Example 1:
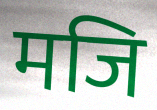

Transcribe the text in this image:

मजि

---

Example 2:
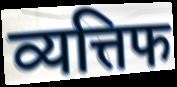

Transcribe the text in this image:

व्यत्तिफ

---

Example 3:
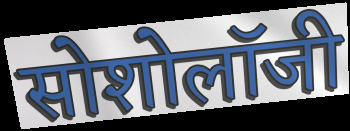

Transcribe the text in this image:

सोशोलॉजी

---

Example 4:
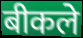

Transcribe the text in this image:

बीकले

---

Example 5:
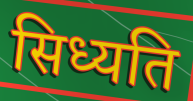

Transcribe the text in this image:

सिध्यति